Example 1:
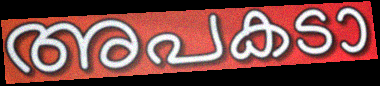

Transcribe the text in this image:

അപകടാ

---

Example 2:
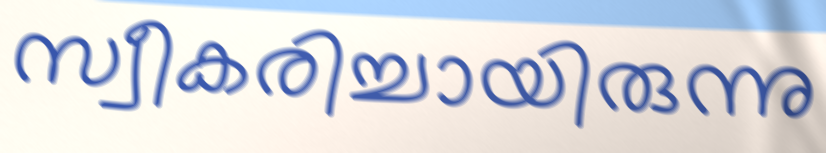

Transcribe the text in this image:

സ്വീകരിച്ചായിരുന്നു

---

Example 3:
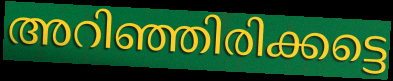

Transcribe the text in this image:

അറിഞ്ഞിരിക്കട്ടെ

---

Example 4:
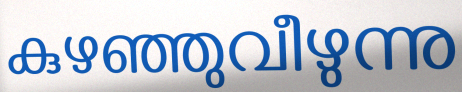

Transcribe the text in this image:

കുഴഞ്ഞുവീഴുന്നു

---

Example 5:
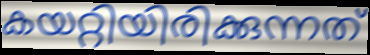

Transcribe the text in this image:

കയറ്റിയിരിക്കുന്നത്